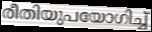
രീതിയുപയോഗിച്ച്